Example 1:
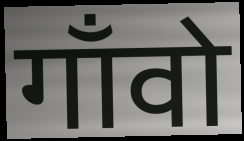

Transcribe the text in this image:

गाँवो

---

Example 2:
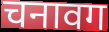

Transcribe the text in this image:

चनावग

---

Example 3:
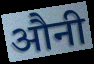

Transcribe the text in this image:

औनी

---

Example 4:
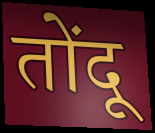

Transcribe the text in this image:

तोंदू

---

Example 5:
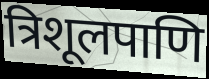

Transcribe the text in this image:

त्रिशूलपाणि